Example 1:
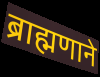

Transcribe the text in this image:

ब्राह्मणाने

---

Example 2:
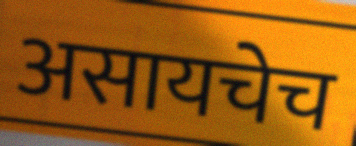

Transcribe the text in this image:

असायचेच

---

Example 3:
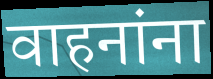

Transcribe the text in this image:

वाहनांना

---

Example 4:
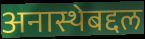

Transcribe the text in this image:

अनास्थेबद्दल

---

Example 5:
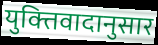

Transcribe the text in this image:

युक्तिवादानुसार